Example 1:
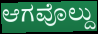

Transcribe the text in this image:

ಆಗವೊಲ್ದು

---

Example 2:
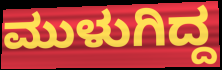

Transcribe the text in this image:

ಮುಳುಗಿದ್ದ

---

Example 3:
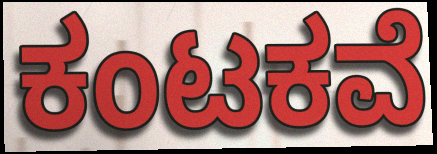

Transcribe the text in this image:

ಕಂಟಕವೆ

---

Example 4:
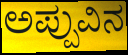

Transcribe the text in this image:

ಅಪ್ಪುವಿನ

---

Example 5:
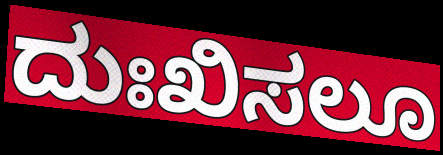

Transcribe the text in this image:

ದುಃಖಿಸಲೂ